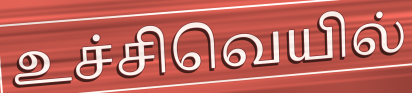
உச்சிவெயில்